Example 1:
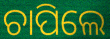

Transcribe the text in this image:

ଚାପିଲେ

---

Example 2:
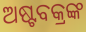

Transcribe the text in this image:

ଅଷ୍ଟବକ୍ରଙ୍କ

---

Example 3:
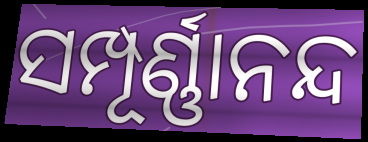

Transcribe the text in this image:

ସମ୍ପୂର୍ଣ୍ଣାନନ୍ଦ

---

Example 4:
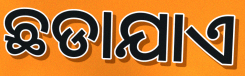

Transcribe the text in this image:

ଛଡାଯାଏ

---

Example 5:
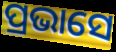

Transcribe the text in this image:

ପ୍ରଭାସେ